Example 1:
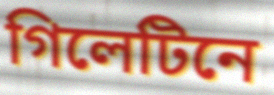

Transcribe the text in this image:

গিলেটিনে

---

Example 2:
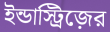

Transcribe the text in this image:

ইন্ডাস্ট্রিজ়ের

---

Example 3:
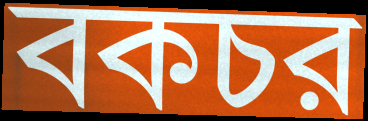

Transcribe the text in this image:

বকচর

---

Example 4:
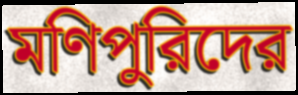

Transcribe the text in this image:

মণিপুরিদের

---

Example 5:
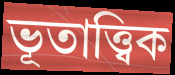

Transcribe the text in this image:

ভূতাত্ত্বিক